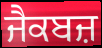
ਜੈਕਬਜ਼